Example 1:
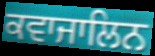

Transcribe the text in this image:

ਕਵਾਜਾਲਿਨ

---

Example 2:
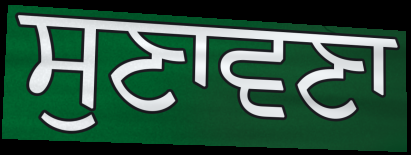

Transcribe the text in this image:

ਸੁਣਾਵਣਾ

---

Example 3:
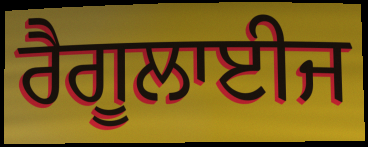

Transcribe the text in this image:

ਰੈਗੂਲਾਈਜ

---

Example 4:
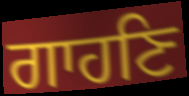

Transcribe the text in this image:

ਗਾਹਣਿ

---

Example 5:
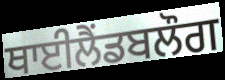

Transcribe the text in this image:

ਥਾਈਲੈਂਡਬਲੌਗ